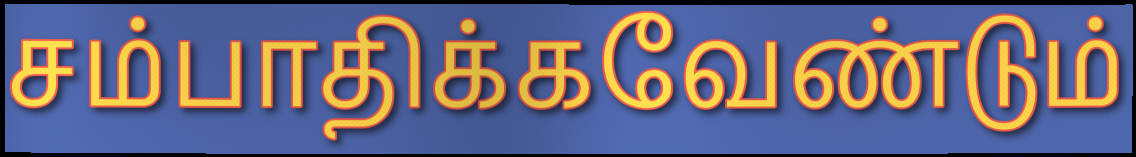
சம்பாதிக்கவேண்டும்